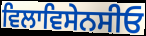
ਵਿਲਾਵਿਸੇਨਸੀਓ